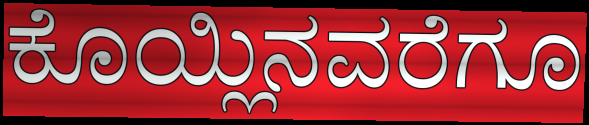
ಕೊಯ್ಲಿನವರೆಗೂ